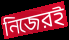
নিজেরই